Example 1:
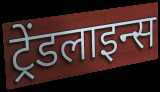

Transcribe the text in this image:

ट्रेंडलाइन्स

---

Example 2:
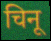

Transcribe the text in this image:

चिनू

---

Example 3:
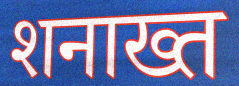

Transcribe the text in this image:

शनाख्त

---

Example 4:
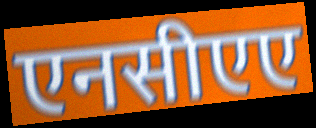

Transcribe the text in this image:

एनसीएए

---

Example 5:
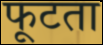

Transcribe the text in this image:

फूटता